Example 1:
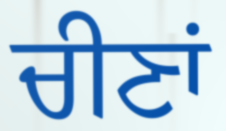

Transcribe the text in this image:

ਚੀਣਾਂ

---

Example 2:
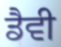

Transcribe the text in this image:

ਡੈਵੀ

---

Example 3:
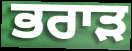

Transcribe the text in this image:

ਭਰਾੜ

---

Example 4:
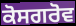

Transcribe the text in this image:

ਕੋਸਗਰੋਵ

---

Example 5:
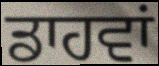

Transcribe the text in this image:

ਡਾਹਵਾਂ